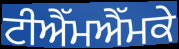
ਟੀਐੱਮਐੱਮਕੇ